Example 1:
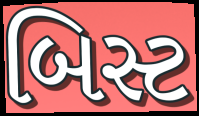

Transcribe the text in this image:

બિસ્ટ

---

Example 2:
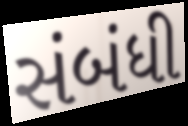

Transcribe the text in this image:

સંબંધી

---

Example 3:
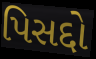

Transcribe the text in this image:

પિસદ્દો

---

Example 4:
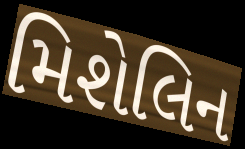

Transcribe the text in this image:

મિશેલિન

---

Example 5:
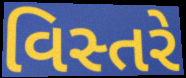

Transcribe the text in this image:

વિસ્તરે